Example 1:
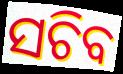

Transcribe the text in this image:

ସଚିବ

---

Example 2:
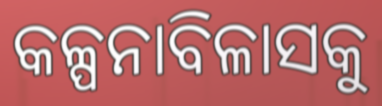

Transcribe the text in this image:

କଳ୍ପନାବିଳାସକୁ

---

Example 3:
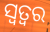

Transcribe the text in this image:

ସ୍ୱତ୍ୱର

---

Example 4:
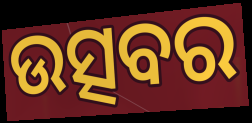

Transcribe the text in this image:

ଉତ୍ସବର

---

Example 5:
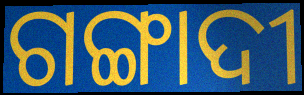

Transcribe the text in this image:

ଗଙ୍ଗାଦୀ